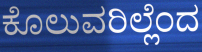
ಕೊಲುವರಿಲ್ಲೆಂದ